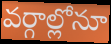
వర్గాల్లోనూ